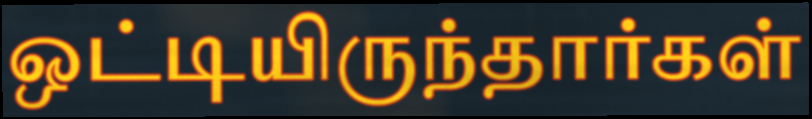
ஒட்டியிருந்தார்கள்